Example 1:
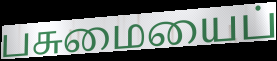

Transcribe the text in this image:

பசுமையைப்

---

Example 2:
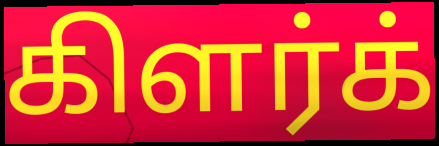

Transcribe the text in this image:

கிளர்க்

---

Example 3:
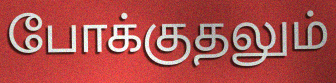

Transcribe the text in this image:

போக்குதலும்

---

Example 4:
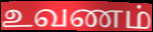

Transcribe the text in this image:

உவணம்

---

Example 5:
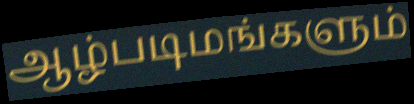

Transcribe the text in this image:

ஆழ்படிமங்களும்